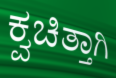
ಕ್ವಚಿತ್ತಾಗಿ